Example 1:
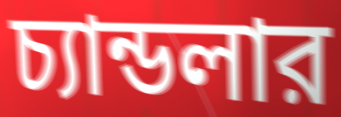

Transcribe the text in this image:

চ্যান্ডলার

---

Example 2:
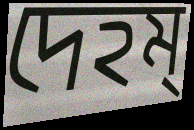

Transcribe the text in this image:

দেহম্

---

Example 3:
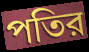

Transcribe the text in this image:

পতির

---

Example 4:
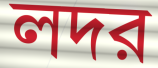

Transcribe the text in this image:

লদর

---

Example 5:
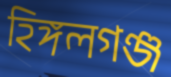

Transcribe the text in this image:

হিঙ্গলগঞ্জ